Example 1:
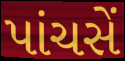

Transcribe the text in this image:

પાંચસેં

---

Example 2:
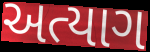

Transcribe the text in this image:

અત્યાગ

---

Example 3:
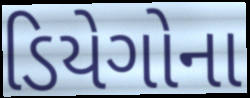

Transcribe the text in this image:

ડિયેગોના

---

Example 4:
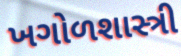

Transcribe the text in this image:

ખગોળશાસ્ત્રી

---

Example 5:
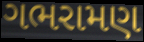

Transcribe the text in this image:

ગભરામણ